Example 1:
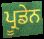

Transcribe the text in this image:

ਪ੍ਰੂਡੇਨ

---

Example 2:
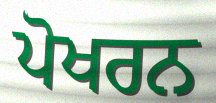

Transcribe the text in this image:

ਪੋਖਰਨ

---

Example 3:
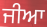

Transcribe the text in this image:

ਜੀਆ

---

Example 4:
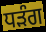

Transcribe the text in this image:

ਧੜੰਗ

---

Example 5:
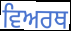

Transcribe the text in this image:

ਵਿਅਰਥ